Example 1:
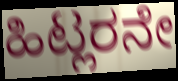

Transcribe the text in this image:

ಹಿಟ್ಲರನೇ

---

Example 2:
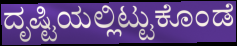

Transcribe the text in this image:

ದೃಷ್ಟಿಯಲ್ಲಿಟ್ಟುಕೊಂಡೆ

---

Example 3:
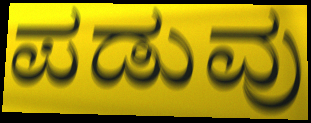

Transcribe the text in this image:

ಪಡುವು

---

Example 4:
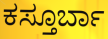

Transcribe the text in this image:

ಕಸ್ತೂರ್ಬಾ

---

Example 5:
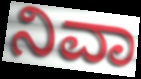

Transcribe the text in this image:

ನಿವಾ